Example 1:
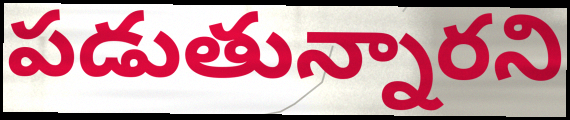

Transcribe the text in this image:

పడుతున్నారని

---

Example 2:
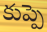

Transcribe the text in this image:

కుప్పె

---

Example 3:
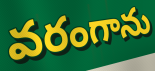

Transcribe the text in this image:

వరంగాను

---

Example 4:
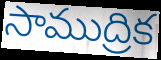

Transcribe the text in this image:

సాముద్రిక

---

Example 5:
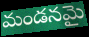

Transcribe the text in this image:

మండనమై